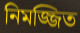
নিমজ্জিত